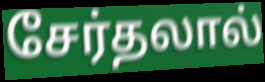
சேர்தலால்